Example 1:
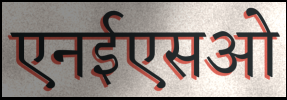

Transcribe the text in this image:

एनईएसओ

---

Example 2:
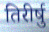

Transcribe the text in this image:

तिरीर्षु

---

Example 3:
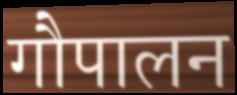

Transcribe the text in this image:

गौपालन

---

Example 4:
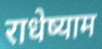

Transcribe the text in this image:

राधेष्याम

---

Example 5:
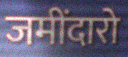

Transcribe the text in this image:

जमींदारो